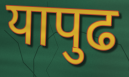
यापुढ